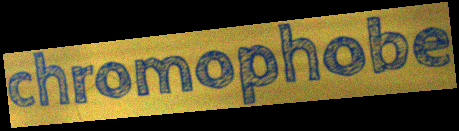
chromophobe